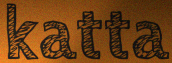
katta